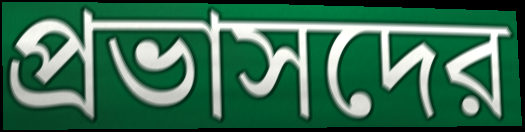
প্রভাসদের